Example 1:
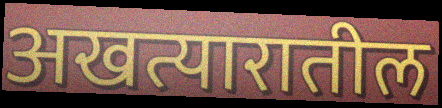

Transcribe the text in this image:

अखत्यारातील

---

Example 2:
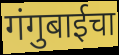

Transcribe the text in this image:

गंगुबाईचा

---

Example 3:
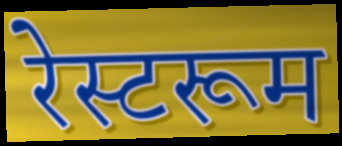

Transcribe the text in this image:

रेस्टरूम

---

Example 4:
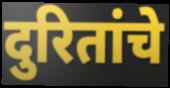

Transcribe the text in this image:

दुरितांचे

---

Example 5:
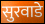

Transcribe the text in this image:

सुरवाडे